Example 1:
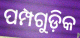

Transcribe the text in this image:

ପମ୍ପଗୁଡ଼ିକ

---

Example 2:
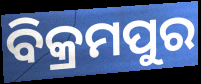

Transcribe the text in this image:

ବିକ୍ରମପୁର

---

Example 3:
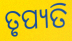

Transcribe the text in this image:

ତୃପ୍ୟତି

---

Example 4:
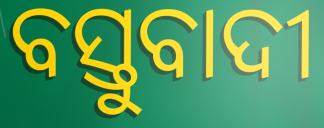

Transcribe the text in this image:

ବସ୍ତୁବାଦୀ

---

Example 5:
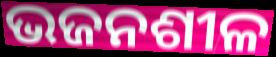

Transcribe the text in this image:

ଭଜନଶୀଳ